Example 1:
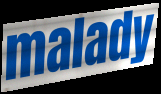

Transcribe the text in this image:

malady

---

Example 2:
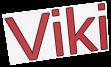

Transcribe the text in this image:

Viki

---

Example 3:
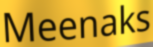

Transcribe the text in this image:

Meenaks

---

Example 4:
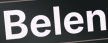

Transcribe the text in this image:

Belen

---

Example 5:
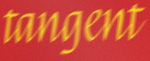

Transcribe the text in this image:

tangent